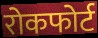
रोकफोर्ट